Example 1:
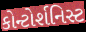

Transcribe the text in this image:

કોન્ટોર્શનિસ્ટ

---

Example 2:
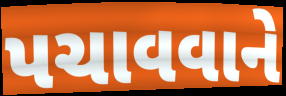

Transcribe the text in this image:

પચાવવાને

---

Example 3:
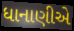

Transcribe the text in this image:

ધાનાણીએ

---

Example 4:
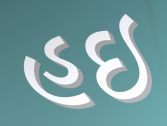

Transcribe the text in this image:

હઇ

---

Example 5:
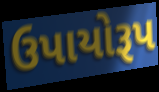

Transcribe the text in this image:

ઉપાયોરૂપ